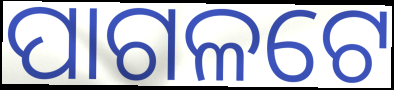
ପାଗଳଟେ